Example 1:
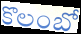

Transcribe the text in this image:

కొలంబో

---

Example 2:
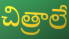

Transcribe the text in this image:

చిత్రాలే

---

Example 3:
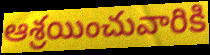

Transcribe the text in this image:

ఆశ్రయించువారికి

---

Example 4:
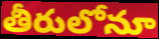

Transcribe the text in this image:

తీరులోనూ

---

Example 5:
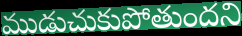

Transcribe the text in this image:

ముడుచుకుపోతుందని